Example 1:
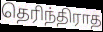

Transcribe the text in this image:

தெரிந்திராத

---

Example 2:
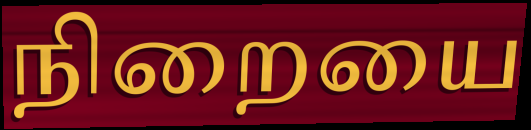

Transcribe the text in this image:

நிறையை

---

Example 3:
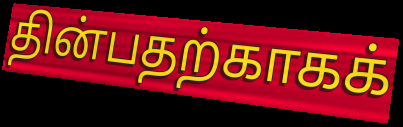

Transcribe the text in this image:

தின்பதற்காகக்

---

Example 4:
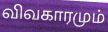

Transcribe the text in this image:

விவகாரமும்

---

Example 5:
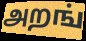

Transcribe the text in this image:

அறங்